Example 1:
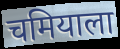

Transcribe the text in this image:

चमियाला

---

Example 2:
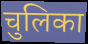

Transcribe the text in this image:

चुलिका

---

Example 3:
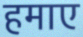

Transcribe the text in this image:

हमाए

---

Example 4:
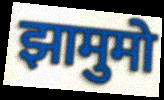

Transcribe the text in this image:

झामुमो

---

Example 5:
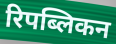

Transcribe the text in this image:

रिपब्लिकन